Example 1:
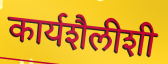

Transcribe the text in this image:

कार्यशैलीशी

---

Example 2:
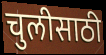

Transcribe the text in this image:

चुलीसाठी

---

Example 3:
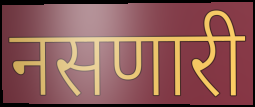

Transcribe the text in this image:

नसणारी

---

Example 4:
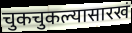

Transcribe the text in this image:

चुकचुकल्यासारखं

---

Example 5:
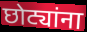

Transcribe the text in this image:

छोट्यांना